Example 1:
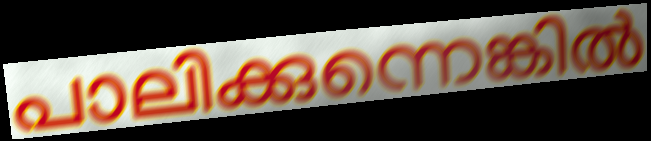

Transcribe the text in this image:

പാലിക്കുന്നെങ്കിൽ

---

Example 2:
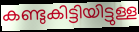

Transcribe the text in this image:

കണ്ടുകിട്ടിയിട്ടുള്ള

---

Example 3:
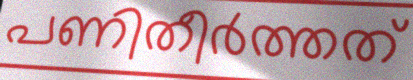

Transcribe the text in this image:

പണിതീർത്തത്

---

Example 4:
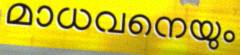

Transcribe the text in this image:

മാധവനെയും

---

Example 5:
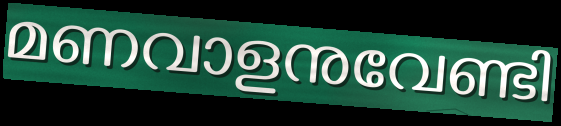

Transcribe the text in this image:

മണവാളനുവേണ്ടി